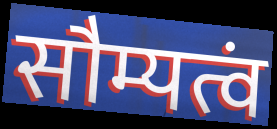
सौम्यत्वं